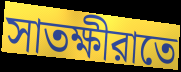
সাতক্ষীরাতে